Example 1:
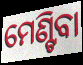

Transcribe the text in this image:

ମେଣ୍ଟିବା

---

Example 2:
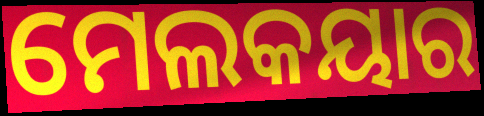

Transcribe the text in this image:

ମେଲକୟାର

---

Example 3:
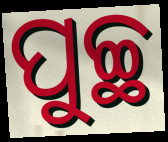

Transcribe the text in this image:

ପୁଚ୍ଛ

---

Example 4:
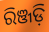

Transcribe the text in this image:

ରିଞ୍ଜଡ଼ି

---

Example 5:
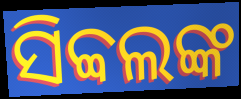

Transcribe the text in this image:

ସିବ୍ବଲଙ୍କ